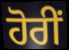
ਹੋਰੀਂ